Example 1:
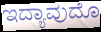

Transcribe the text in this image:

ಇದ್ಯಾವುದೊ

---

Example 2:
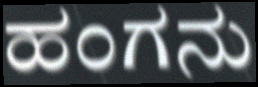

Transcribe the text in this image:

ಹಂಗನು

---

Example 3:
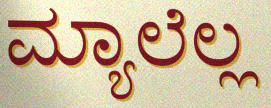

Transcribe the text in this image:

ಮ್ಯಾಲೆಲ್ಲ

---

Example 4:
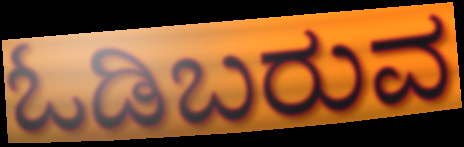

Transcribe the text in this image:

ಓಡಿಬರುವ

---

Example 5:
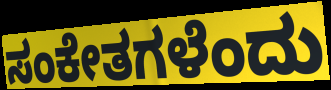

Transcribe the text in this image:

ಸಂಕೇತಗಳೆಂದು